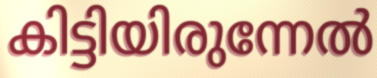
കിട്ടിയിരുന്നേൽ